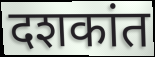
दशकांत